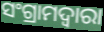
ସଂଗ୍ରାମଦ୍ଵାରା